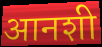
आनशी